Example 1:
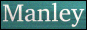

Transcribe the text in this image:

Manley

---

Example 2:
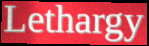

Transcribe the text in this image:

Lethargy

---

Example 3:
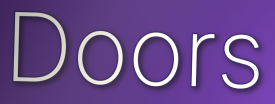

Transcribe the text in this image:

Doors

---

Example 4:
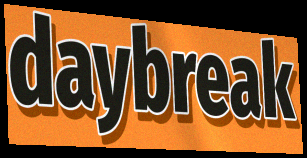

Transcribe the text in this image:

daybreak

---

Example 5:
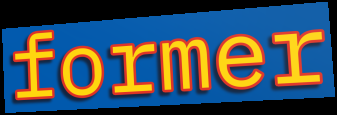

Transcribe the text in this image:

former